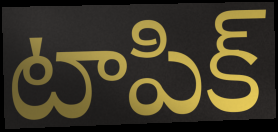
టాపిక్